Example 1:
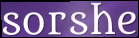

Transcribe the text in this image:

sorshe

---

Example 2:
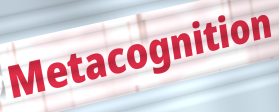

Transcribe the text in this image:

Metacognition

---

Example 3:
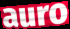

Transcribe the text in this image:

auro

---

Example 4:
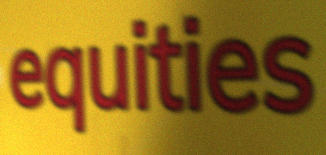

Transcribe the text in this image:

equities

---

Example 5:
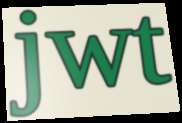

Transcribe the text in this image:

jwt